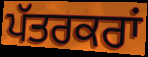
ਪੱਤਰਕਰਾਂ